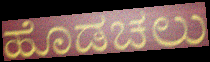
ಹೊಡಚಲು